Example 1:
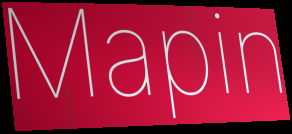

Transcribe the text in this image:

Mapin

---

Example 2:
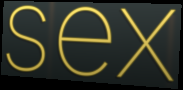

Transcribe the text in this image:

sex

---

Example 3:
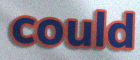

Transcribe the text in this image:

could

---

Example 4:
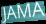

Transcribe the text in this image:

JAMA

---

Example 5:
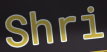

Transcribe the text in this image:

Shri